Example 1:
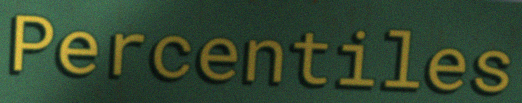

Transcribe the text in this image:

Percentiles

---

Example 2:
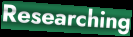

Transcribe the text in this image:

Researching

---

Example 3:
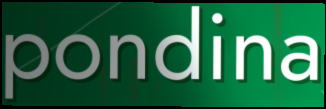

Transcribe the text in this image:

pondina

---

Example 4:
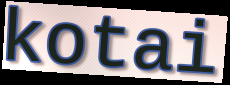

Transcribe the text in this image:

kotai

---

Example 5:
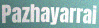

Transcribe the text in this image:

Pazhayarrai